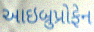
આઇબ્રુપ્રોફેન